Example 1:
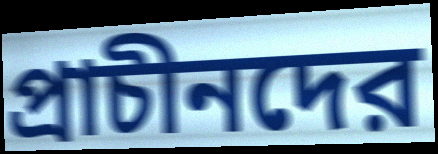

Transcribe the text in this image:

প্রাচীনদের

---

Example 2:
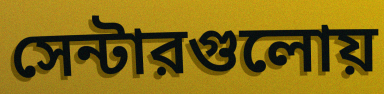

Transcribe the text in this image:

সেন্টারগুলোয়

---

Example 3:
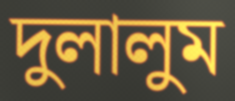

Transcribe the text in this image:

দুলালুম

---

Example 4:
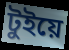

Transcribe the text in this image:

টুইয়ে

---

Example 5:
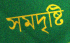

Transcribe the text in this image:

সমদৃষ্টি